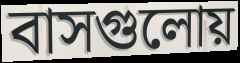
বাসগুলোয়